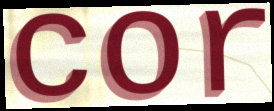
cor